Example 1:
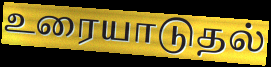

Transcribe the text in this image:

உரையாடுதல்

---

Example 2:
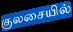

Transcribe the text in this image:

குலசையில்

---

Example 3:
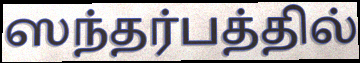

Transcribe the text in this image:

ஸந்தர்பத்தில்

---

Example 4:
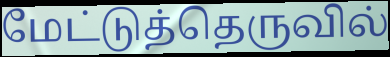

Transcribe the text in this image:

மேட்டுத்தெருவில்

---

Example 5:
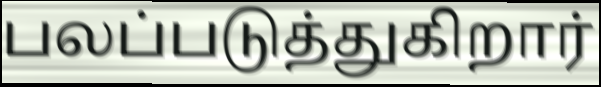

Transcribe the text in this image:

பலப்படுத்துகிறார்